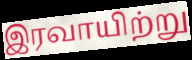
இரவாயிற்று